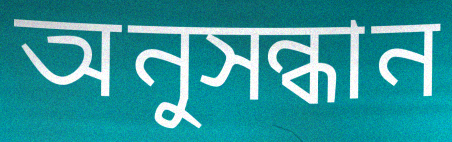
অনুসন্ধান